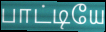
பாட்டியே